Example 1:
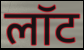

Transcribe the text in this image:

लॉट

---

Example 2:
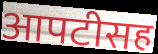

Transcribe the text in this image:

आपटीसह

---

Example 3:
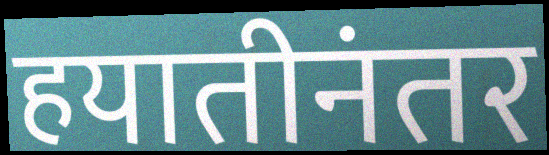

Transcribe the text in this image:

हयातीनंतर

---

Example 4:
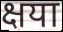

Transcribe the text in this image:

क्षया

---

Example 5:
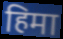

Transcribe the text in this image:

हिमा